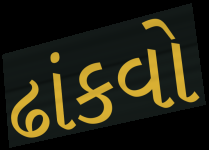
ઢાંકવો